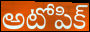
అటోపిక్